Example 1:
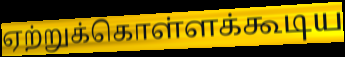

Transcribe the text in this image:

ஏற்றுக்கொள்ளக்கூடிய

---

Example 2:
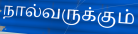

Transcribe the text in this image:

நால்வருக்கும்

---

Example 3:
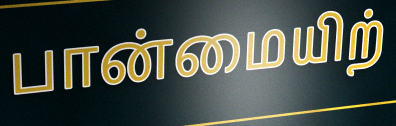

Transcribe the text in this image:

பான்மையிற்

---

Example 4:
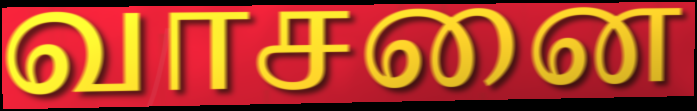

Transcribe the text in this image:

வாசனை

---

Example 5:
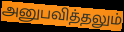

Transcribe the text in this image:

அனுபவித்தலும்